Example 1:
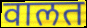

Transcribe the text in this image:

वालत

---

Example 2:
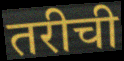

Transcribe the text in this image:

तरीची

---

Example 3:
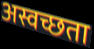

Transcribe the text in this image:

अस्वच्छता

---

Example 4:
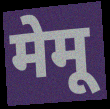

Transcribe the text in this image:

मेमू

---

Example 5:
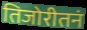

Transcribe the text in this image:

तिजोरीतनं